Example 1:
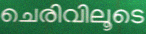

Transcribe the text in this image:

ചെരിവിലൂടെ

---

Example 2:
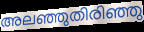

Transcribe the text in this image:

അലഞ്ഞുതിരിഞ്ഞു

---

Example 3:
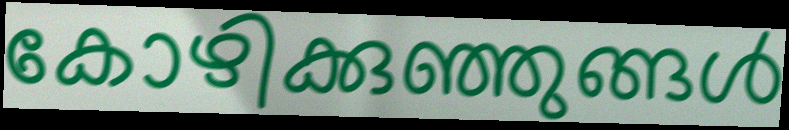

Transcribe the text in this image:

കോഴിക്കുഞ്ഞുങ്ങൾ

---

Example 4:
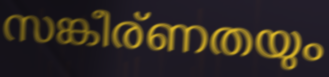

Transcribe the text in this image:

സങ്കീര്ണതയും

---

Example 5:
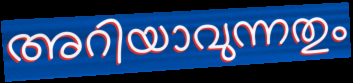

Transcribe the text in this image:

അറിയാവുന്നതും